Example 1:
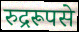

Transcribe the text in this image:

रुद्ररूपसे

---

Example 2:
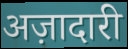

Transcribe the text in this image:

अज़ादारी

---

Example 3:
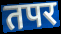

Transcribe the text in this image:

तपर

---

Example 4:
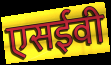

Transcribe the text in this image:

एसईवी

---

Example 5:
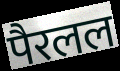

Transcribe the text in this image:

पैरलल